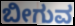
ಬೀಗುವ